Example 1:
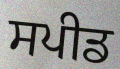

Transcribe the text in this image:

ਸਪੀਡ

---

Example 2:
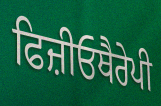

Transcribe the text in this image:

ਫਿਜ਼ੀਓਥੈਰੇਪੀ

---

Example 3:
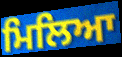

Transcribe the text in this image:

ਮਿਲਿਆ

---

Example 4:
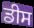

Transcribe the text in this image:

ਡੀਸ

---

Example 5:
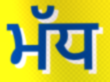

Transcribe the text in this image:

ਮੱਧ